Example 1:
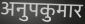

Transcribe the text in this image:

अनुपकुमार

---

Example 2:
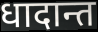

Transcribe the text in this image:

धादान्त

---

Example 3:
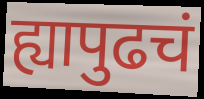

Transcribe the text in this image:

ह्यापुढचं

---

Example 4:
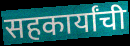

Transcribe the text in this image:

सहकार्यांची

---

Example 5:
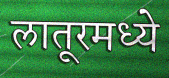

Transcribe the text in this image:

लातूरमध्ये